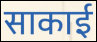
साकाई